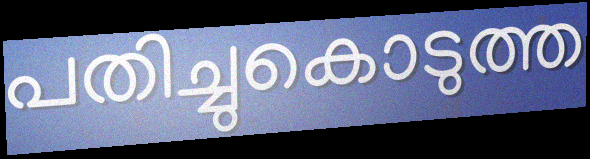
പതിച്ചുകൊടുത്ത